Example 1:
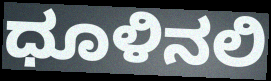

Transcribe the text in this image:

ಧೂಳಿನಲಿ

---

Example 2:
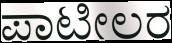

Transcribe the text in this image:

ಪಾಟೀಲರ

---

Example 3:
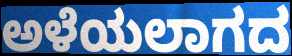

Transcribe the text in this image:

ಅಳೆಯಲಾಗದ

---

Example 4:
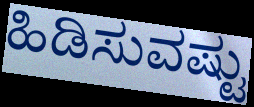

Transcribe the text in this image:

ಹಿಡಿಸುವಷ್ಟು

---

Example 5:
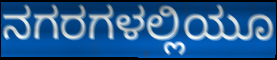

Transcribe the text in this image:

ನಗರಗಳಲ್ಲಿಯೂ